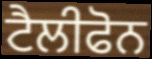
ਟੈਲੀਫੋਨ